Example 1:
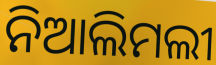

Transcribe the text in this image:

ନିଆଲିମଲୀ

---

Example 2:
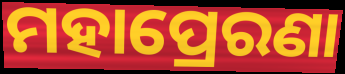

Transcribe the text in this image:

ମହାପ୍ରେରଣା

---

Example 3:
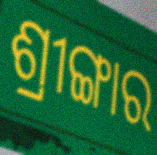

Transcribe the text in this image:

ଶ୍ରୀଙ୍ଗାର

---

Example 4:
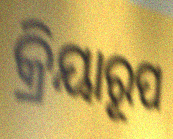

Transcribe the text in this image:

କ୍ରିୟାରୂପ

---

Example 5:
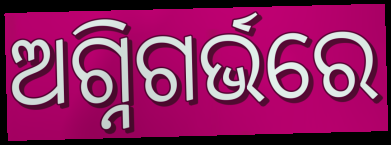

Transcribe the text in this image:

ଅଗ୍ନିଗର୍ଭରେ